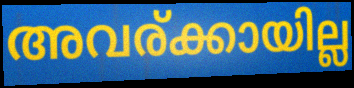
അവര്ക്കായില്ല